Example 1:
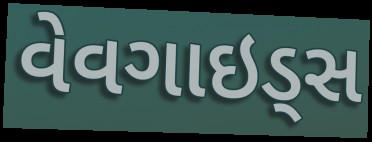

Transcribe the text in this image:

વેવગાઇડ્સ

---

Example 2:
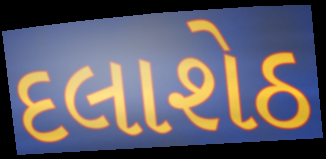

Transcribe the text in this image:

દલાશેઠ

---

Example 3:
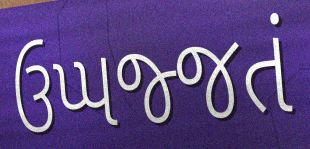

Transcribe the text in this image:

ઉપ્પજ્જતં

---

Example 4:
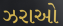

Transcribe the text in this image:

ઝરાઓ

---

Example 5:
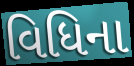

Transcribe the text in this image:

વિધિના